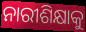
ନାରୀଶିକ୍ଷାକୁ